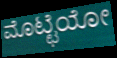
ಮೊಟ್ಟೆಯೋ